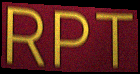
RPT